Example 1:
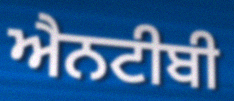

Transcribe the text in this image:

ਐਨਟੀਬੀ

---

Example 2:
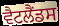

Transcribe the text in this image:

ਵੈਟਲੈਂਡਸ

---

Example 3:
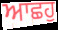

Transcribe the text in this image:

ਆਛਹੁ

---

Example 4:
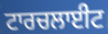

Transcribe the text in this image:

ਟਾਰਚਲਾਈਟ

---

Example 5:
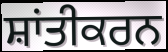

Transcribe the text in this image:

ਸ਼ਾਂਤੀਕਰਨ